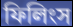
ফিলিংস